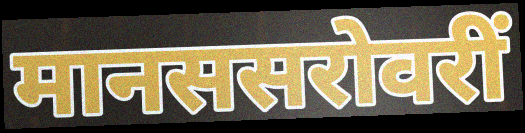
मानससरोवरीं